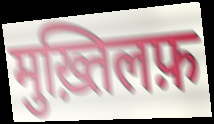
मुख़्तिलफ़